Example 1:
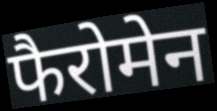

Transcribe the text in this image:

फैरोमेन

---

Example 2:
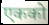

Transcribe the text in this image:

एकको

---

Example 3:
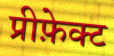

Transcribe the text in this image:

प्रीफ़ेक्ट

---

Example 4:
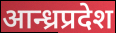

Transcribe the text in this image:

आन्ध्रप्रदेश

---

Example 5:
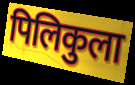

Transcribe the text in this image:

पिलिकुला